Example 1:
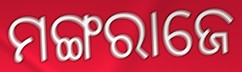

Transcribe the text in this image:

ମଙ୍ଗରାଜେ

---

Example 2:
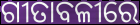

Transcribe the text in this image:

ଗୀତାବଳୀରେ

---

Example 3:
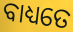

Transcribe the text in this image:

ବାଧ୍ଯତେ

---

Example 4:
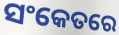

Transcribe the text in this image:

ସଂକେତରେ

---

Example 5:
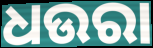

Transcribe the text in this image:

ଧଉରା